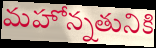
మహోన్నతునికి